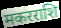
मकरराशि